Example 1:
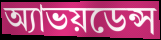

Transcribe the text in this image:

অ্যাভয়ডেন্স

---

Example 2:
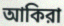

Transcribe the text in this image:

আকিরা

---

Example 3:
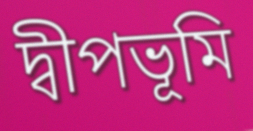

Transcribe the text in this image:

দ্বীপভূমি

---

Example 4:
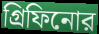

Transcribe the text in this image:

গ্রিফিনোর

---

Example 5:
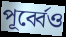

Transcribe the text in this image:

পূর্ব্বেও